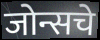
जोन्सचे